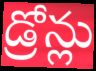
డ్రోన్లు